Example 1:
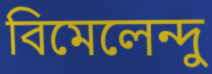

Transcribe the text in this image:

বিমেলেন্দু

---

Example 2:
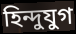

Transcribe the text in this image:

হিন্দুযুগ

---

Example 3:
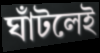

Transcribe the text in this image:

ঘাঁটলেই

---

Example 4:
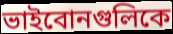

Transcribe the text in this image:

ভাইবোনগুলিকে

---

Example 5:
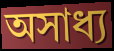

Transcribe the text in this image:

অসাধ্য